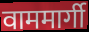
वाममार्गी